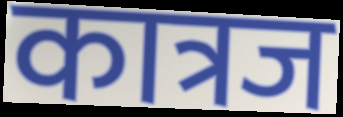
कात्रज